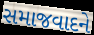
સમાજવાદને